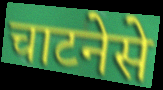
चाटनेसे